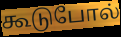
கூடுபோல்